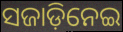
ସଜାଡ଼ିନେଇ